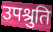
उपश्रुति